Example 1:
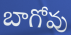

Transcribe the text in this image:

బాగోవు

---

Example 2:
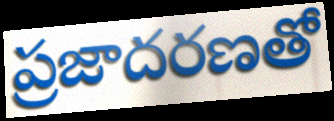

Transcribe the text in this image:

ప్రజాదరణతో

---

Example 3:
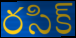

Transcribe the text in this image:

రసిక్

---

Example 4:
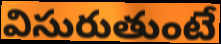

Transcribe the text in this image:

విసురుతుంటే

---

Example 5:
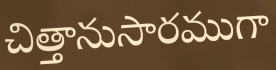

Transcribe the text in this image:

చిత్తానుసారముగా